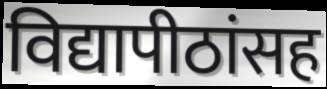
विद्यापीठांसह